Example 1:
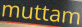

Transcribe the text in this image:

muttam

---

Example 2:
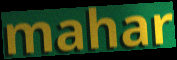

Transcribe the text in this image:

mahar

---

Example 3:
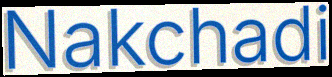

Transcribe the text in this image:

Nakchadi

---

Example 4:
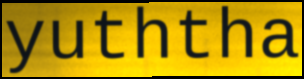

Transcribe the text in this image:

yuththa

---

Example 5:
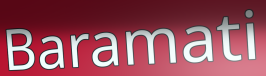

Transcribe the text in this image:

Baramati